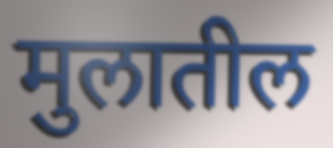
मुलातील